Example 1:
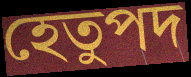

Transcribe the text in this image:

হেতুপদ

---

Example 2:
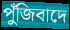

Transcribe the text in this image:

পুঁজিবাদে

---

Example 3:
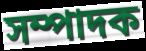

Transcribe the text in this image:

সম্পাদক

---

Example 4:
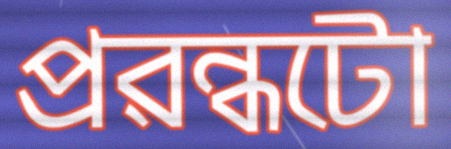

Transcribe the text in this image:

প্ৰৱন্ধটো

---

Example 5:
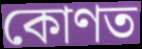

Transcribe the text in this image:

কোণত